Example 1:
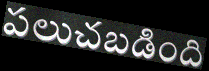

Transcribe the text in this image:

పలుచబడింది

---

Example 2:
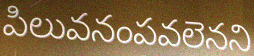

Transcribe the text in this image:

పిలువనంపవలెనని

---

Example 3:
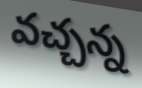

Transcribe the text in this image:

వచ్చన్న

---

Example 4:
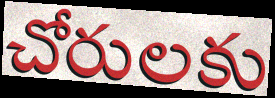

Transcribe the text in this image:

చోరులకు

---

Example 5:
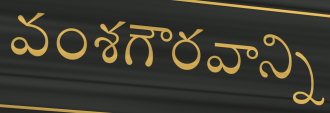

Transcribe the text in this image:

వంశగౌరవాన్ని